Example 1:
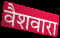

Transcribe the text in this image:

वैशवारा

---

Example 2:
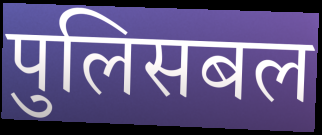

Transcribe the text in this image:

पुलिसबल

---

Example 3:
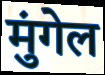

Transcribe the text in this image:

मुंगेल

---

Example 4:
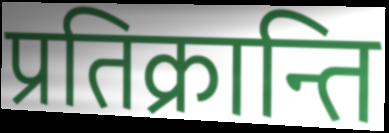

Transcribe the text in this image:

प्रतिक्रान्ति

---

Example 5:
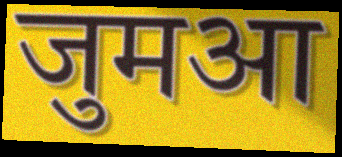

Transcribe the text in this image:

जुमआ